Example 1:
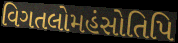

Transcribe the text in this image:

વિગતલોમહંસોતિપિ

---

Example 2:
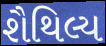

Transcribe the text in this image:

શૈથિલ્ય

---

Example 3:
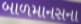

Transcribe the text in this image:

બાળમાનસના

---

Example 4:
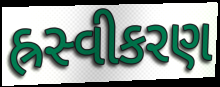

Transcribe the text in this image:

હ્રસ્વીકરણ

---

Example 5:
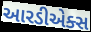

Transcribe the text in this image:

આરડીએક્સ